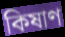
কিষাণ